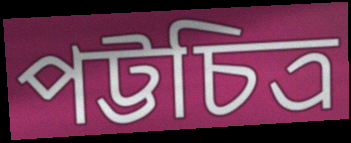
পট্টচিত্র